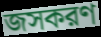
জসকরণ